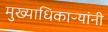
मुख्याधिकाऱ्यांनी